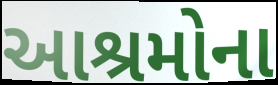
આશ્રમોના